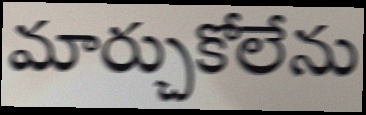
మార్చుకోలేను